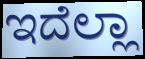
ಇದೆಲ್ಲಾ